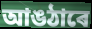
আঙঠাৰে